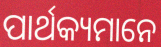
ପାର୍ଥକ୍ୟମାନେ